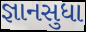
જ્ઞાનસુધા